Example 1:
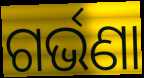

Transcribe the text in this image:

ଗର୍ଭଣା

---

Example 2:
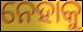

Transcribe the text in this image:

ନେହାକୁ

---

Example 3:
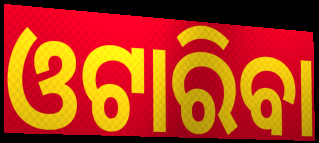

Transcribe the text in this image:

ଓଟାରିବା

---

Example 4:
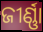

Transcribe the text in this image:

ଜୀର୍ଣ୍ଣା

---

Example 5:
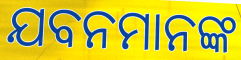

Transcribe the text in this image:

ଯବନମାନଙ୍କ